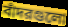
বাঁদরগুলো